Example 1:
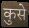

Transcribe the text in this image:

कुसे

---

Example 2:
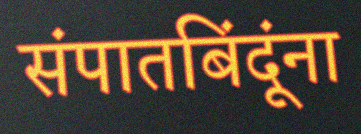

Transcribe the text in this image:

संपातबिंदूंना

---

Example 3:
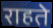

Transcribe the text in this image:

राहते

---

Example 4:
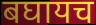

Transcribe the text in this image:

बघायच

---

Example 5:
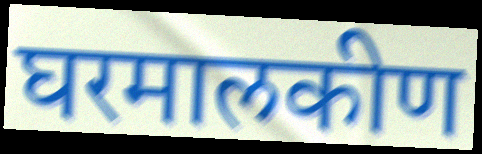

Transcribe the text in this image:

घरमालकीण